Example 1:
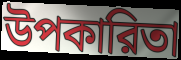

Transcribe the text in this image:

উপকারিতা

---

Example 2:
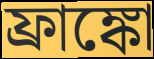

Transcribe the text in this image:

ফ্রাঙ্কো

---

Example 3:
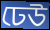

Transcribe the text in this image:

ঢেউ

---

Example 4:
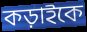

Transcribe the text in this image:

কড়াইকে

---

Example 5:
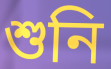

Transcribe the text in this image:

শুনি